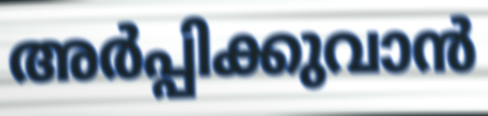
അർപ്പിക്കുവാൻ